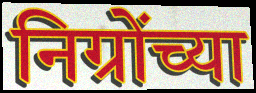
निग्रोंच्या